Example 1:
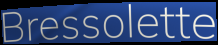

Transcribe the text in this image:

Bressolette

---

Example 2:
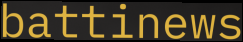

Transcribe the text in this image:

battinews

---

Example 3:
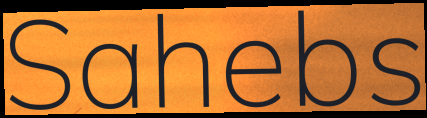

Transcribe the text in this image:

Sahebs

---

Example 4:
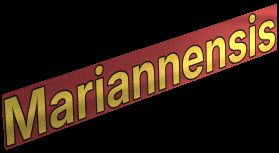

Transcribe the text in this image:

Mariannensis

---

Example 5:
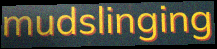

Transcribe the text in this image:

mudslinging